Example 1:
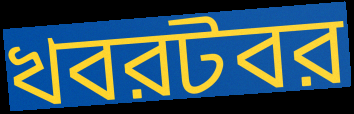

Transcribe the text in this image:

খবরটবর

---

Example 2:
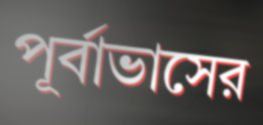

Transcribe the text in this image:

পূর্বাভাসের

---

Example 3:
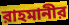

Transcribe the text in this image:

রাহমানীর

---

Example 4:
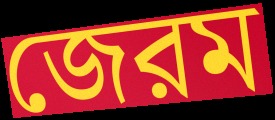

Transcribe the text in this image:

জেরম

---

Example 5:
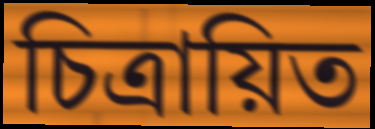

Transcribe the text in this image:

চিত্রায়িত